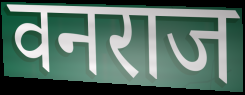
वनराज